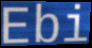
Ebi